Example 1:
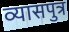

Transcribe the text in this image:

व्यासपुत्र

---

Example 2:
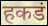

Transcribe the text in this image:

हकडं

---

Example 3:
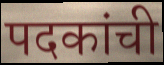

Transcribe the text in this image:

पदकांची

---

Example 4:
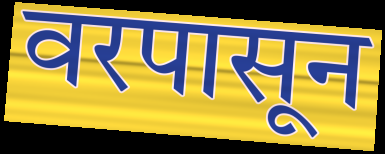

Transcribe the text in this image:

वरपासून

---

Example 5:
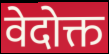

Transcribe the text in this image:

वेदोक्त